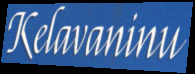
Kelavaninu